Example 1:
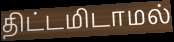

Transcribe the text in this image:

திட்டமிடாமல்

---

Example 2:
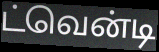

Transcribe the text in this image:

ட்வென்டி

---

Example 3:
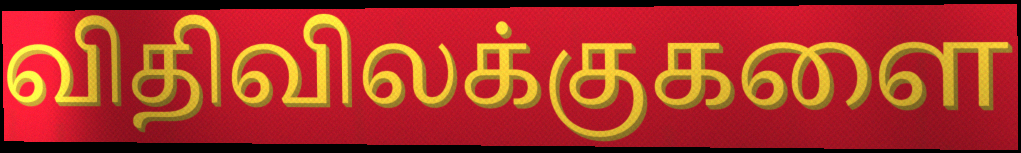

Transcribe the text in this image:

விதிவிலக்குகளை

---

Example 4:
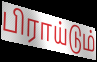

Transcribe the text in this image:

பிராய்டும்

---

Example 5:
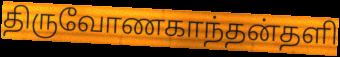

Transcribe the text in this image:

திருவோணகாந்தன்தளி